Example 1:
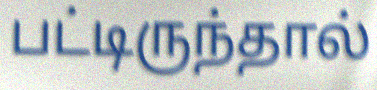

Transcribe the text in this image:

பட்டிருந்தால்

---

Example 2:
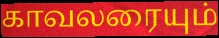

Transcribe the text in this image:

காவலரையும்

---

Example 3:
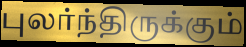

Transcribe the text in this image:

புலர்ந்திருக்கும்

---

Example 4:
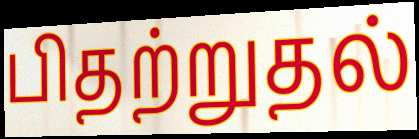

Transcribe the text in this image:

பிதற்றுதல்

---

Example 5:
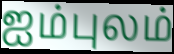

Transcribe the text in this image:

ஐம்புலம்